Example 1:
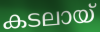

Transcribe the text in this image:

കടലായ്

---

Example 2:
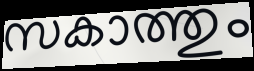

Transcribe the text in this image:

സകാത്തും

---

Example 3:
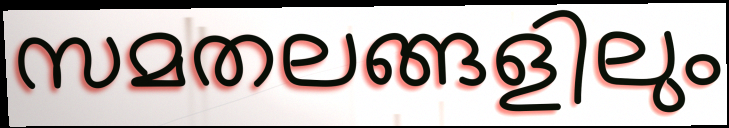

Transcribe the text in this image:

സമതലങ്ങളിലും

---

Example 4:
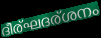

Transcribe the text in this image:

ദീര്ഘദര്ശനം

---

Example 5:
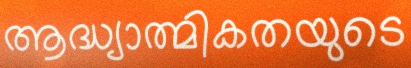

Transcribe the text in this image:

ആദ്ധ്യാത്മികതയുടെ